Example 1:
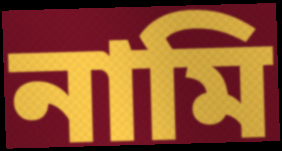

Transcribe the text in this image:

নামি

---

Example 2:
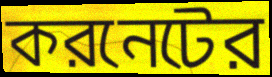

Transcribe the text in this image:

করনেটের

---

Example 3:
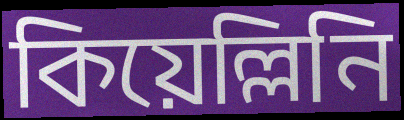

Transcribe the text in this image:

কিয়েল্লিনি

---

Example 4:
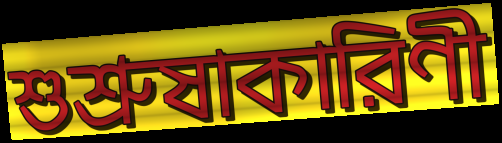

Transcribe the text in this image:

শুশ্রুষাকারিণী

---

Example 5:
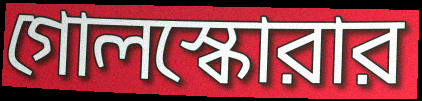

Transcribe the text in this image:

গোলস্কোরার